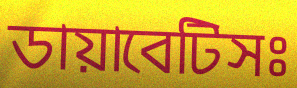
ডায়াবেটিসঃ